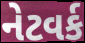
નેટવર્ક